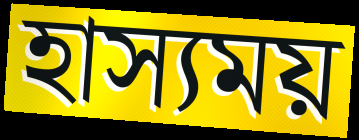
হাস্যময়